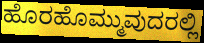
ಹೊರಹೊಮ್ಮುವುದರಲ್ಲಿ